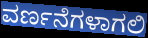
ವರ್ಣನೆಗಳಾಗಲಿ